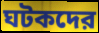
ঘটকদের